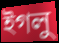
ইগলু